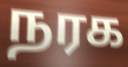
நரக